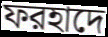
ফরহাদে